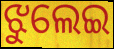
ଝୁଲେଇ